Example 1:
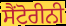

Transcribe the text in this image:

ਸੈਂਟੋਰੀਨੀ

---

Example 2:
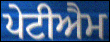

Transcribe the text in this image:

ਪੇਟੀਐਮ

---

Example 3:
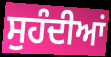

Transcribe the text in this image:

ਸੁਹੰਦੀਆਂ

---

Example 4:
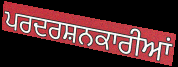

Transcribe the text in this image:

ਪਰਦਰਸ਼ਨਕਾਰੀਆਂ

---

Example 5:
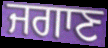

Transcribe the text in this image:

ਜਗਾਣ